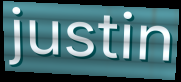
justin